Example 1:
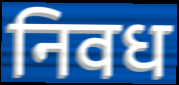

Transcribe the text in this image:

निवध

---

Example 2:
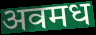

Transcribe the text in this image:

अवमध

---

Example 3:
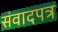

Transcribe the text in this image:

संवादपत्र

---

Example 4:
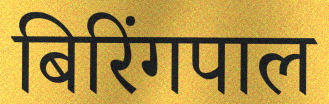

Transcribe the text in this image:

बिरिंगपाल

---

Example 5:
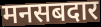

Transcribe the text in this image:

मनसबदार